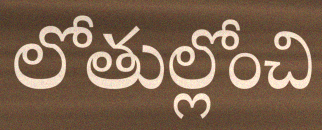
లోతుల్లోంచి